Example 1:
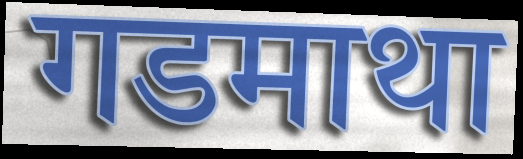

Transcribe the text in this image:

गडमाथा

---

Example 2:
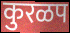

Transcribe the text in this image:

कुरळप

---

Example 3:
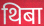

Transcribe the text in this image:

थिबा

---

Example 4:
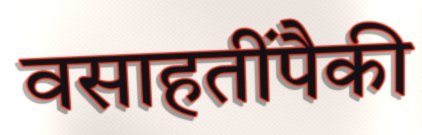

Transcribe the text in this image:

वसाहतींपैकी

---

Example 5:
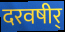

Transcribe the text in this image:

दरवषीर्